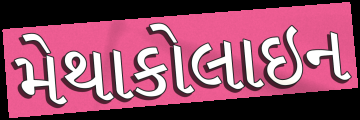
મેથાકોલાઇન